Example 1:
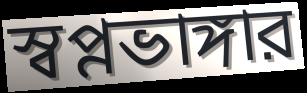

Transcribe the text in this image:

স্বপ্নভাঙ্গার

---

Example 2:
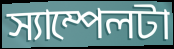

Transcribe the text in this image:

স্যাম্পেলটা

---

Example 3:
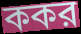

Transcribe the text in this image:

ককর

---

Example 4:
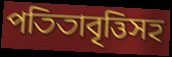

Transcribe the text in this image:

পতিতাবৃত্তিসহ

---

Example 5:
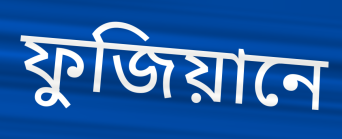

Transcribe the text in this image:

ফুজিয়ানে